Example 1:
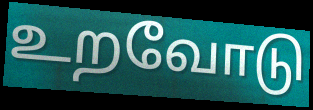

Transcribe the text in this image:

உறவோடு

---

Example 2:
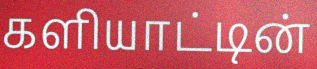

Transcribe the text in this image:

களியாட்டின்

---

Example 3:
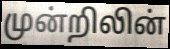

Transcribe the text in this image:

முன்றிலின்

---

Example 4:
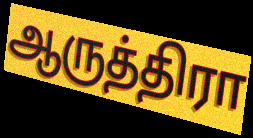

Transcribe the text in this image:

ஆருத்திரா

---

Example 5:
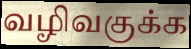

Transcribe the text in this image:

வழிவகுக்க